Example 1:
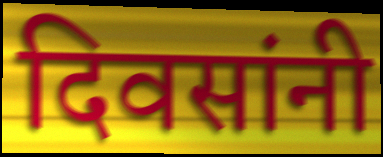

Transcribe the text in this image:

दिवसांनी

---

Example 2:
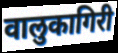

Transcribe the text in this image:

वालुकागिरी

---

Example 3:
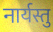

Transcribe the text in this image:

नार्यस्तु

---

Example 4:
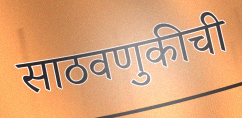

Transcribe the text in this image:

साठवणुकीची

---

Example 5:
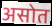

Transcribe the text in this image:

असोत